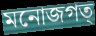
মনোজগত্